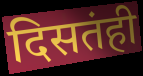
दिसतंही